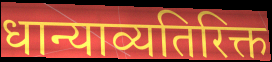
धान्याव्यतिरिक्त